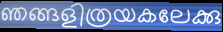
ഞങ്ങളിത്രയകലേക്കു